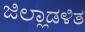
ಜಿಲ್ಲಾಡಳಿತ